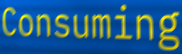
Consuming